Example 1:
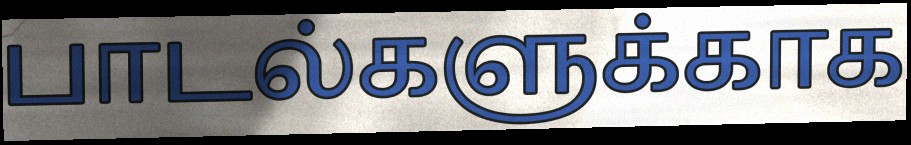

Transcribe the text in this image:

பாடல்களுக்காக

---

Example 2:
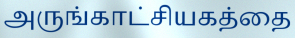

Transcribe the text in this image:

அருங்காட்சியகத்தை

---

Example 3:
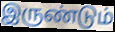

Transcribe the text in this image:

இருண்டும்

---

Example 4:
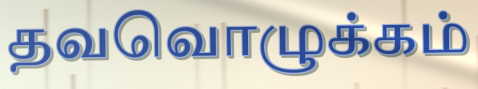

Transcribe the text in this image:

தவவொழுக்கம்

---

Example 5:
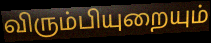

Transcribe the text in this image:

விரும்பியுறையும்